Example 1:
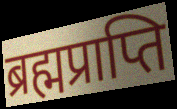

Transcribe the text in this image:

ब्रह्मप्राप्ति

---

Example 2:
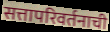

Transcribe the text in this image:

सत्तापरिवर्तनाची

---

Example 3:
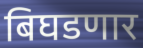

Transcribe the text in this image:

बिघडणार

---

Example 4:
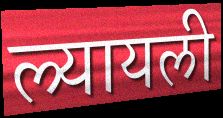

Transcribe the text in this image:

ल्यायली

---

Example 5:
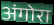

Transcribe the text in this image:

अंगोरा